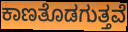
ಕಾಣತೊಡಗುತ್ತವೆ